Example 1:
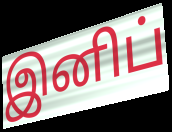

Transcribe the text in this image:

இனிப்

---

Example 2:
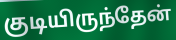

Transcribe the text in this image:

குடியிருந்தேன்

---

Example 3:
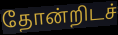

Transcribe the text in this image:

தோன்றிடச்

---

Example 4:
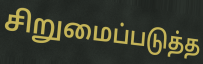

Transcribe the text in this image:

சிறுமைப்படுத்த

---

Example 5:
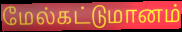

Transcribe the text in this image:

மேல்கட்டுமானம்